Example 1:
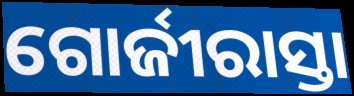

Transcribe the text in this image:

ଗୋର୍ଜୀରାସ୍ତା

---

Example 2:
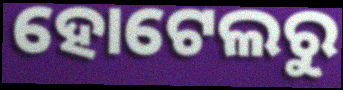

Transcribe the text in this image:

ହୋଟେଲରୁ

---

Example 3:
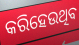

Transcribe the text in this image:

କରିହେଉଥିବ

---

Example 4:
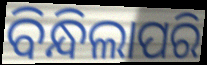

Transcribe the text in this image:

ବିନ୍ଧିଲାପରି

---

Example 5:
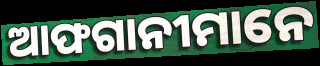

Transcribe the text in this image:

ଆଫଗାନୀମାନେ